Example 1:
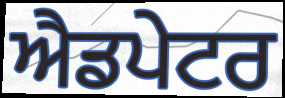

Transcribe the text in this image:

ਐਡਪੇਟਰ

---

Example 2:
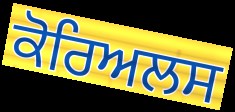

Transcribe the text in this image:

ਕੋਰਿਅਲਸ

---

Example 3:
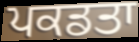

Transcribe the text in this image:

ਪਕਡਤਾ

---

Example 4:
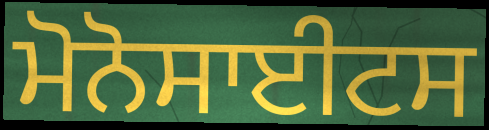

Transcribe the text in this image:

ਮੋਨੋਸਾਈਟਸ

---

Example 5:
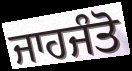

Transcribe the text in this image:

ਜਾਹਜੰਤੋ